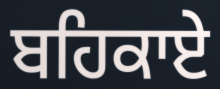
ਬਹਿਕਾਏ